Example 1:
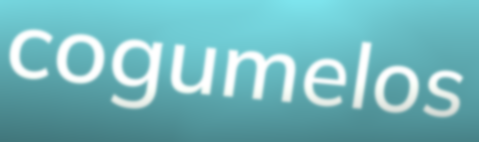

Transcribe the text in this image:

cogumelos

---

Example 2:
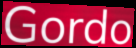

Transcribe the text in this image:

Gordo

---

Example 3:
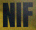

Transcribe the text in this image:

NIF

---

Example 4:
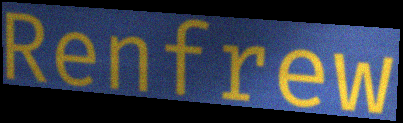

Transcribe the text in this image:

Renfrew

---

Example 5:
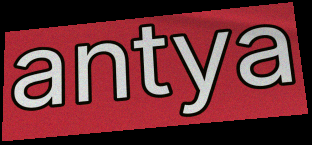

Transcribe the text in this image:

antya